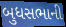
બુધસભાની